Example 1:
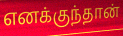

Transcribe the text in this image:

எனக்குந்தான்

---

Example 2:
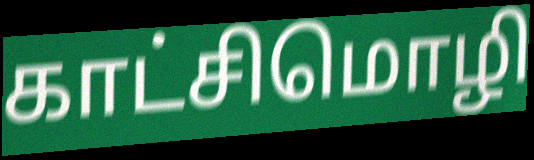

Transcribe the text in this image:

காட்சிமொழி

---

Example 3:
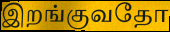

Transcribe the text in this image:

இறங்குவதோ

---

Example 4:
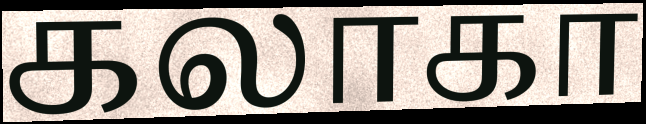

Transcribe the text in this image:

கலாகா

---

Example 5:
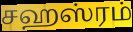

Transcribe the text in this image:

சஹஸ்ரம்